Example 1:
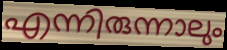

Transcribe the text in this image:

എന്നിരുന്നാലും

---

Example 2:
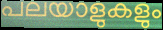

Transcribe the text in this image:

പലയാളുകളും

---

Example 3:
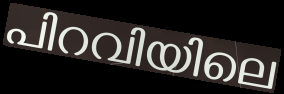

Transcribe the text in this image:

പിറവിയിലെ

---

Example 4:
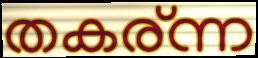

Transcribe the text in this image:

തകര്ന്ന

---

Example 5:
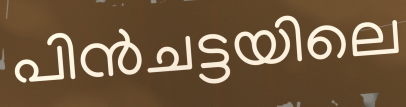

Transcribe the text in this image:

പിൻചട്ടയിലെ